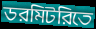
ডরমিটরিতে